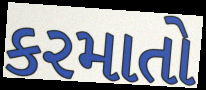
કરમાતો